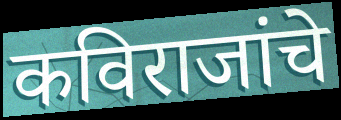
कविराजांचे